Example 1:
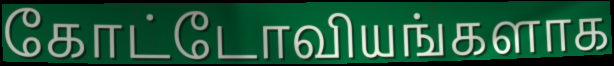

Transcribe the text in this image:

கோட்டோவியங்களாக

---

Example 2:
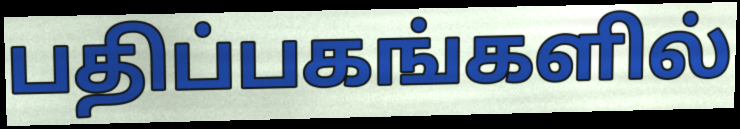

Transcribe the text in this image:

பதிப்பகங்களில்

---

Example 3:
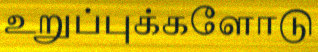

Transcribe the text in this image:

உறுப்புக்களோடு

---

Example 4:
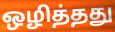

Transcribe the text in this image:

ஒழித்தது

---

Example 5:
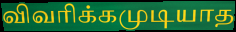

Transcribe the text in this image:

விவரிக்கமுடியாத